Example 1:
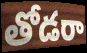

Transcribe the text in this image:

తోడరా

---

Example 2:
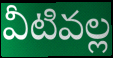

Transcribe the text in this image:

వీటివల్ల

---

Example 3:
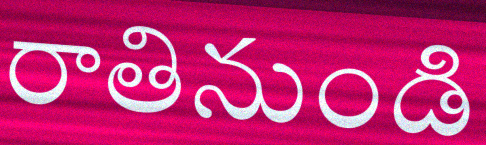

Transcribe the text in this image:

రాతినుండి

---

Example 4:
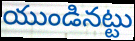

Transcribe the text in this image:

యుండినట్టు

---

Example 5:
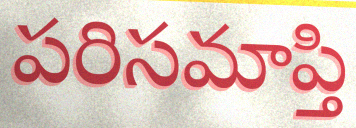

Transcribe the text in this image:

పరిసమాప్తి